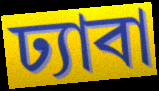
ঢ্যাবা